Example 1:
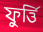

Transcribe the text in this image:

ফুৰ্ত্তি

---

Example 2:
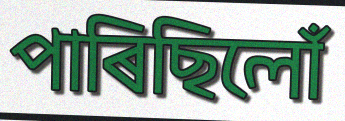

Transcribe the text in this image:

পাৰিছিলোঁ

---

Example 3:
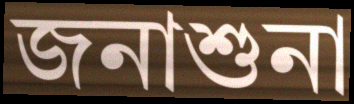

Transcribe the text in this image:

জনাশুনা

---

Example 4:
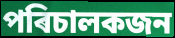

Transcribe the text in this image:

পৰিচালকজন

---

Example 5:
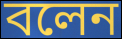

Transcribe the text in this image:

বলেন